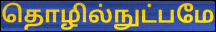
தொழில்நுட்பமே